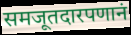
समजूतदारपणानं